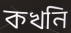
কখনি